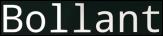
Bollant